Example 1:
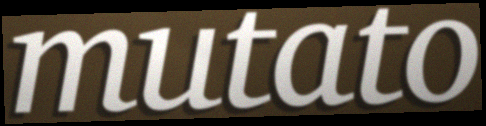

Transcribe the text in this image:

mutato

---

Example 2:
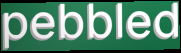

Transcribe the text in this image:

pebbled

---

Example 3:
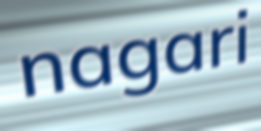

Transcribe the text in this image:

nagari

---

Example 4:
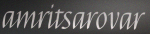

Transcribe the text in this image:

amritsarovar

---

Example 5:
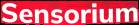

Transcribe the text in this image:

Sensorium